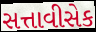
સત્તાવીસેક